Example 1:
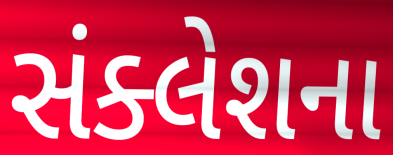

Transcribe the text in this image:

સંક્લેશના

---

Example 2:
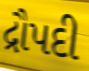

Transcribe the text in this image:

દ્રૌપદી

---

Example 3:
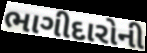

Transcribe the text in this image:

ભાગીદારોની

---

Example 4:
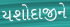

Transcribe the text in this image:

યશોદાજીને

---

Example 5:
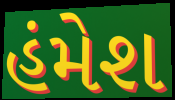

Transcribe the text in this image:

હંમેશ